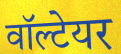
वॉल्टेयर